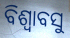
ବିଶ୍ୱାବସୁ